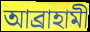
আব্ৰাহামী